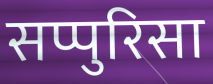
सप्पुरिसा